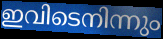
ഇവിടെനിന്നും